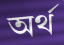
অর্থ